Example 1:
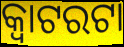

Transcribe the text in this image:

କ୍ଵାଟରଟା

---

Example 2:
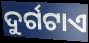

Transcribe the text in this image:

ଦୁର୍ଗଟାଏ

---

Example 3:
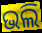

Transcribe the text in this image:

ଭଲି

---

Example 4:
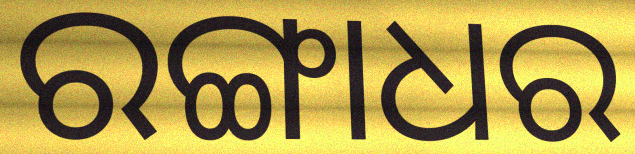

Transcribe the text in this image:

ରଙ୍ଗାଧର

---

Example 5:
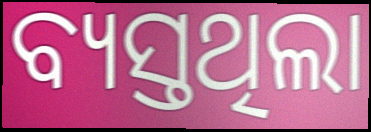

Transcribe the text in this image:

ବ୍ୟସ୍ତଥିଲା